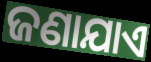
ଜଣାଯାଏ